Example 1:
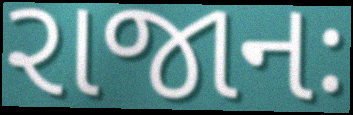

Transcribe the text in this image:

રાજાનઃ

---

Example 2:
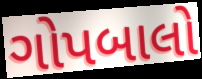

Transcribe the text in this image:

ગોપબાલો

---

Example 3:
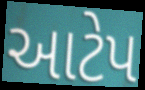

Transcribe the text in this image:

આટેપ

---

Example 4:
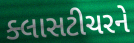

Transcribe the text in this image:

ક્લાસટીચરને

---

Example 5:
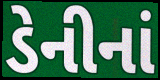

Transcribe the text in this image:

ડેનીનાં